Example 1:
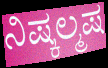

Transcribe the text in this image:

ನಿಷ್ಕಲ್ಮಷ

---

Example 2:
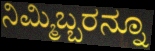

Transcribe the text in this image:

ನಿಮ್ಮಿಬ್ಬರನ್ನೂ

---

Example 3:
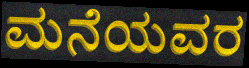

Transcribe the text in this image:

ಮನೆಯವರ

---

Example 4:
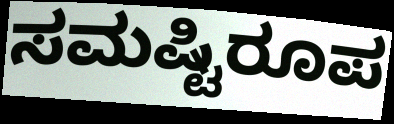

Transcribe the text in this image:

ಸಮಷ್ಟಿರೂಪ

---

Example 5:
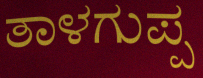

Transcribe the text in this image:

ತಾಳಗುಪ್ಪ